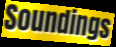
Soundings